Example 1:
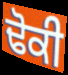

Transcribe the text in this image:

ਢੋਕੀ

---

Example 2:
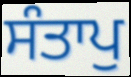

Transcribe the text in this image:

ਸੰਤਾਪੁ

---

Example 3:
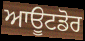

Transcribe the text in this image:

ਆਊਟਡੋਰ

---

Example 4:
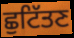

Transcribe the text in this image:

ਛੁਟਿੱਤਣ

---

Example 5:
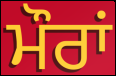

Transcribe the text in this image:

ਮੌਰਾਂ